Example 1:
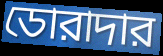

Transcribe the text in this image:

ডোরাদার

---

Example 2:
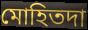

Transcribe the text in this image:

মোহিতদা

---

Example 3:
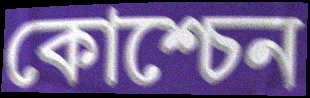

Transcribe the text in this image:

কোশ্চেন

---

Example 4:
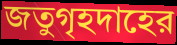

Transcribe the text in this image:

জতুগৃহদাহের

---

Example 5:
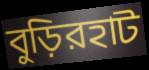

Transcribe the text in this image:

বুড়িরহাট